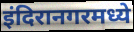
इंदिरानगरमध्ये